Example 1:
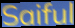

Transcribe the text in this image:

Saiful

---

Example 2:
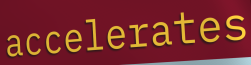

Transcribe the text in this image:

accelerates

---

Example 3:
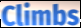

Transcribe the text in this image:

Climbs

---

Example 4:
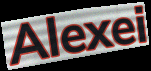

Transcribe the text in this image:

Alexei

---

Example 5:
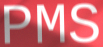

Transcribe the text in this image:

PMS